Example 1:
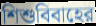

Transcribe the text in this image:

শিশুবিবাহের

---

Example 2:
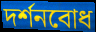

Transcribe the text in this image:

দর্শনবোধ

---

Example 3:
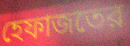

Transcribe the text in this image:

হেফাজতের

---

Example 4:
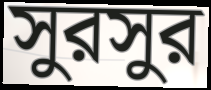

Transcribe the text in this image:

সুরসুর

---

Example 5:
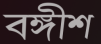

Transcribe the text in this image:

বঙ্গীশ